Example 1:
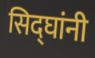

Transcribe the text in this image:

सिद्घांनी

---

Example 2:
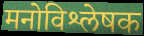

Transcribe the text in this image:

मनोविश्लेषक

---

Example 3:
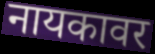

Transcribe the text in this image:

नायकावर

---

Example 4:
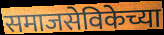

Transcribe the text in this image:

समाजसेविकेच्या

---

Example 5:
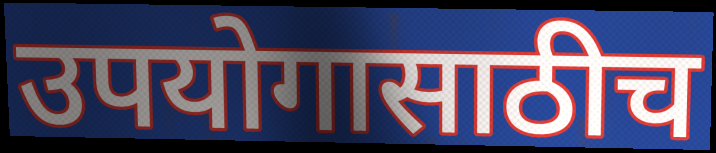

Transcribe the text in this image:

उपयोगासाठीच